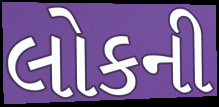
લોકની